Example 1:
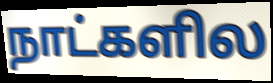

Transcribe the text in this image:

நாட்களில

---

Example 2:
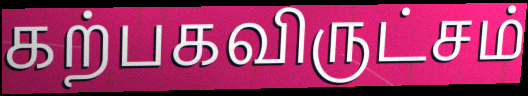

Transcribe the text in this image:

கற்பகவிருட்சம்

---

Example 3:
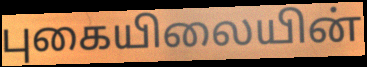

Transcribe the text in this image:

புகையிலையின்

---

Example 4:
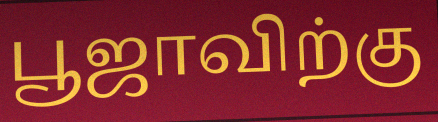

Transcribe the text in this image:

பூஜாவிற்கு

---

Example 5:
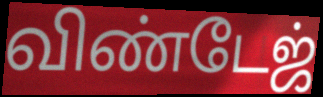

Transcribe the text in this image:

விண்டேஜ்